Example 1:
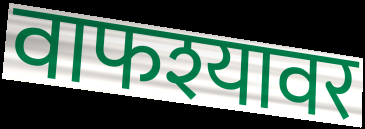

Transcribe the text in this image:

वाफश्यावर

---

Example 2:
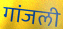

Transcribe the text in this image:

गांजली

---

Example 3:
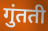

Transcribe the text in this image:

गुंतती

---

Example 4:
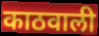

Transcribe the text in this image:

काठवाली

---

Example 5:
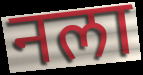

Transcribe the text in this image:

नला